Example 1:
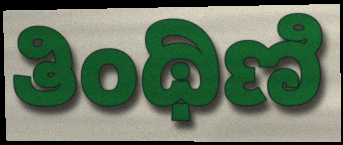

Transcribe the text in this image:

ತಿಂಥಿಣಿ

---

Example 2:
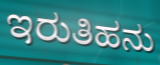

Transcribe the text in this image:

ಇರುತಿಹನು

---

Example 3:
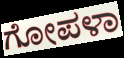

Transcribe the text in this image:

ಗೋಪಳಾ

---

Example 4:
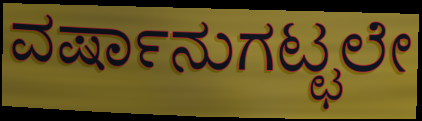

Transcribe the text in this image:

ವರ್ಷಾನುಗಟ್ಟಲೇ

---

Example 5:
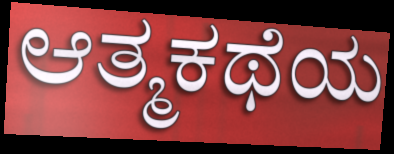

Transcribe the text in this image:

ಆತ್ಮಕಥೆಯ